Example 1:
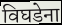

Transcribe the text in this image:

विघडेना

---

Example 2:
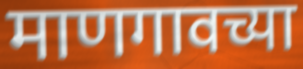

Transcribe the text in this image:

माणगावच्या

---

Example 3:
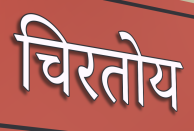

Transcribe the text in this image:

चिरतोय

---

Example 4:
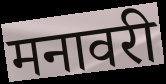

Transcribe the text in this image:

मनावरी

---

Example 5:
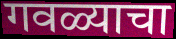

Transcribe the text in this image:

गवळ्याचा